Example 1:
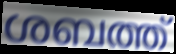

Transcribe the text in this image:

ശബത്ത്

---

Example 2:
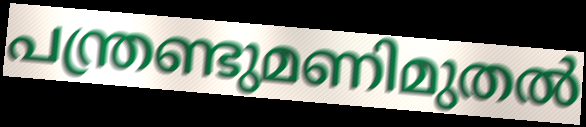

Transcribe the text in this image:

പന്ത്രണ്ടുമണിമുതൽ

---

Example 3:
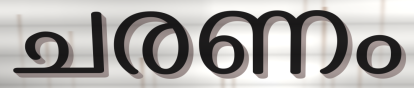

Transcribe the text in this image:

ചരണം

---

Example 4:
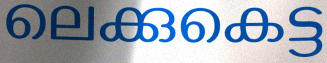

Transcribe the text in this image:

ലെക്കുകെട്ട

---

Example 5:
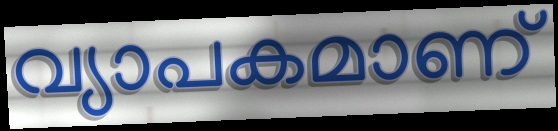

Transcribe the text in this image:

വ്യാപകമാണ്